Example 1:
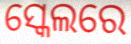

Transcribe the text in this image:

ସ୍କେଲରେ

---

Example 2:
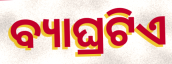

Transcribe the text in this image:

ବ୍ୟାଘ୍ରଟିଏ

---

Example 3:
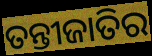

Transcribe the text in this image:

ତନ୍ତୀଜାତିର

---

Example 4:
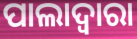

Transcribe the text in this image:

ପାଲାଦ୍ୱାରା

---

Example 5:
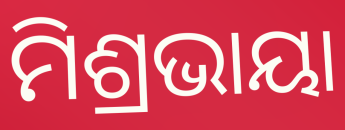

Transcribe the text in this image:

ମିଶ୍ରଭାୟା